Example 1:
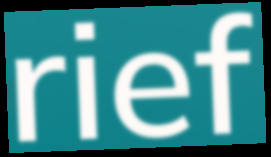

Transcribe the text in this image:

rief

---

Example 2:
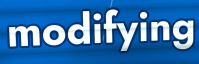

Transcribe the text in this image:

modifying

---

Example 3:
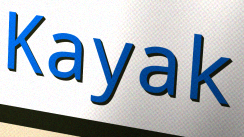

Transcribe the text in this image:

Kayak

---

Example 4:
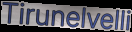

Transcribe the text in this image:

Tirunelvelli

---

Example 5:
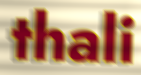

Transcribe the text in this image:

thali